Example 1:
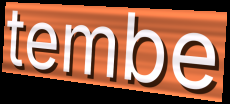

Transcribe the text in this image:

tembe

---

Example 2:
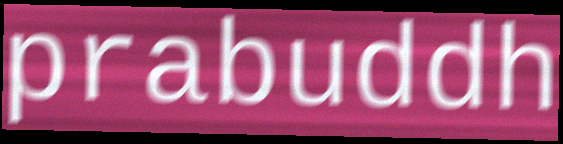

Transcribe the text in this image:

prabuddh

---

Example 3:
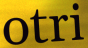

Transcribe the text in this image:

otri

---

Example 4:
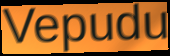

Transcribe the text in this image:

Vepudu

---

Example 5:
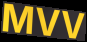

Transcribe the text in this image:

MVV